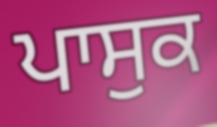
ਪਾਸੁਕ